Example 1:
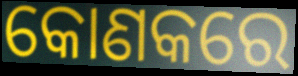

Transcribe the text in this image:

କୋଣକରେ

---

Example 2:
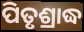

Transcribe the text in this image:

ପିତୃଶ୍ରାଦ୍ଧ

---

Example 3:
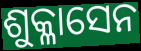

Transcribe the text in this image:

ଶୁକ୍ଳାସେନ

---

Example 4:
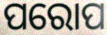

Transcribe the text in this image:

ପରୋପ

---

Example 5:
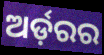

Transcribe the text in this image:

ଅର୍ଡ଼ରର